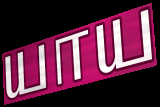
யாய